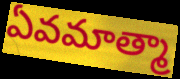
ఏవమాత్మా